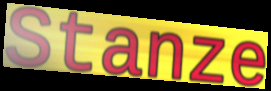
Stanze